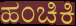
ಹಂಚಿಕಿ